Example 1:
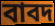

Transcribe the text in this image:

বাবদ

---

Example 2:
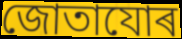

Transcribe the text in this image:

জোতাযোৰ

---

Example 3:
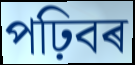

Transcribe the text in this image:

পঢ়িবৰ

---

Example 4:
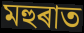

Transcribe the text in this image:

মহুৰাত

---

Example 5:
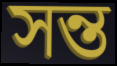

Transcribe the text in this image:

সন্ত